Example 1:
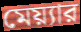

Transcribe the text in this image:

মেয়্যার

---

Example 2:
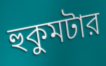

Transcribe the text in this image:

হুকুমটার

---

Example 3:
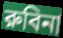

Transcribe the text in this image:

রুবিনা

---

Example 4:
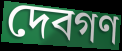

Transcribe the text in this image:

দেবগণ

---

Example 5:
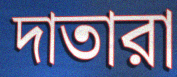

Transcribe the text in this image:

দাতারা